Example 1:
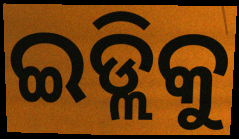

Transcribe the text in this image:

ଇଡ୍ଲିକୁ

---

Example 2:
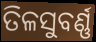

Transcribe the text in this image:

ତିଳସୁବର୍ଣ୍ଣ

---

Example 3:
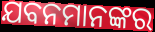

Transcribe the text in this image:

ଯବନମାନଙ୍କର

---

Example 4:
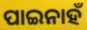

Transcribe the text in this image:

ପାଇନାହଁ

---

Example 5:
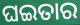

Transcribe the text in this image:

ଘଇତାର